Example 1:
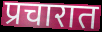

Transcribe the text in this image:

प्रचारात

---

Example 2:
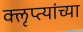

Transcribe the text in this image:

क्लृप्त्यांच्या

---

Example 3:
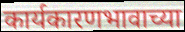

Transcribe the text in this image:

कार्यकारणभावाच्या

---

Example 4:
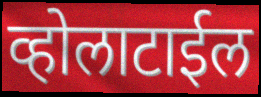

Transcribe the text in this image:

व्होलाटाईल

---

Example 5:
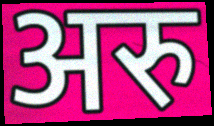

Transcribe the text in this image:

अरु